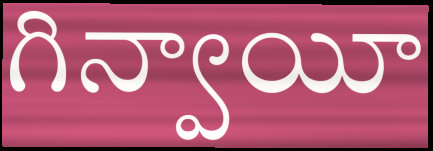
గిన్వాయీ